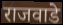
राजवाडे